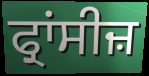
ਫ੍ਰਾਂਸੀਜ਼